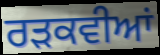
ਰੜਕਵੀਆਂ